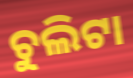
ଚୁଲିଟା